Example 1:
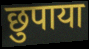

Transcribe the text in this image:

छुपाया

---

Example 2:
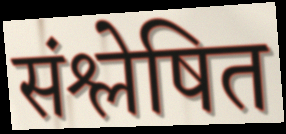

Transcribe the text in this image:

संश्लेषित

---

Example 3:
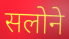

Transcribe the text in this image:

सलोने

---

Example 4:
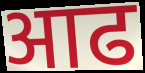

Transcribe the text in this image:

आढ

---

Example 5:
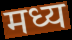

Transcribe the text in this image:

मध्‍य